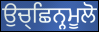
ਉਚ੍ਛਿਨ੍ਨਮੂਲੋ